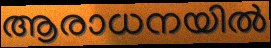
ആരാധനയിൽ